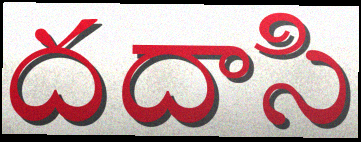
దదాసి